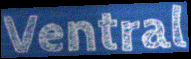
Ventral